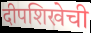
दीपशिखेची